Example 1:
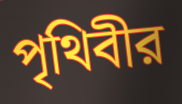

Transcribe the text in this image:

পৃথিবীর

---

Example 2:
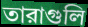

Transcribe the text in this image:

তারাগুলি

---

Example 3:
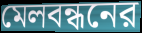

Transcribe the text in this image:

মেলবন্ধনের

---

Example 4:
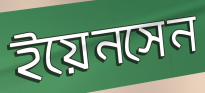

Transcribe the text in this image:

ইয়েনসেন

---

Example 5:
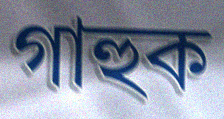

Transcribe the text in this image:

গাহুক